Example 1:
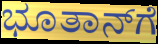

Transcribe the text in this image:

ಭೂತಾನ್‌ಗೆ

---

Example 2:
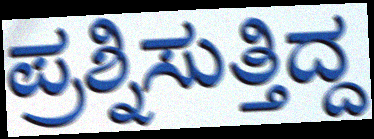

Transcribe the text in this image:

ಪ್ರಶ್ನಿಸುತ್ತಿದ್ದ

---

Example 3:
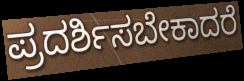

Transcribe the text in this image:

ಪ್ರದರ್ಶಿಸಬೇಕಾದರೆ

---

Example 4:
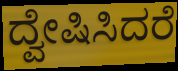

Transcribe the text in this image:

ದ್ವೇಷಿಸಿದರೆ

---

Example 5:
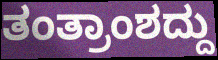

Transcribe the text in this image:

ತಂತ್ರಾಂಶದ್ದು